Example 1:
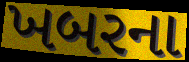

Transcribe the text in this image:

ખબરના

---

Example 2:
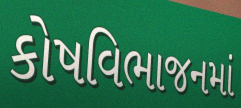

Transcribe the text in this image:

કોષવિભાજનમાં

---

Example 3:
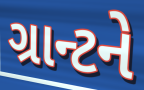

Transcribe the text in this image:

ગ્રાન્ટને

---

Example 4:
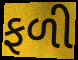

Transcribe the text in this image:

ફળી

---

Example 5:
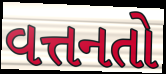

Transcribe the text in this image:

વત્તનતો